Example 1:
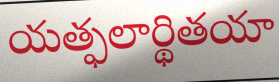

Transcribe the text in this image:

యత్ఫలార్థితయా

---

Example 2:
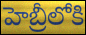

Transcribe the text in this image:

హెబ్రీలోకి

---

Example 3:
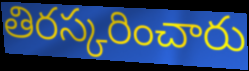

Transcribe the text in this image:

తిరస్కరించారు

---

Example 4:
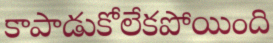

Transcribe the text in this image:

కాపాడుకోలేకపోయింది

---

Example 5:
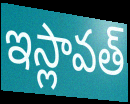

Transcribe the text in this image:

ఇస్లావత్